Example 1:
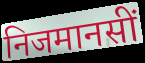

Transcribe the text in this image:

निजमानसीं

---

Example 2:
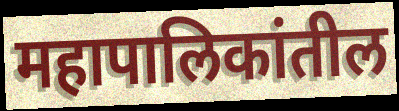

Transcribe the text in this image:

महापालिकांतील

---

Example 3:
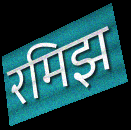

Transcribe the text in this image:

रमिझ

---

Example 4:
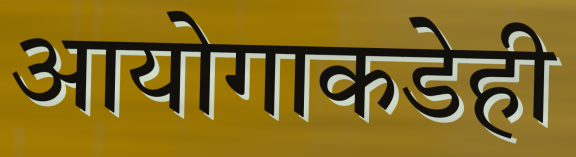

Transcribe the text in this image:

आयोगाकडेही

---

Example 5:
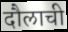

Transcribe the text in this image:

दौलाची